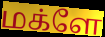
மக்ளே